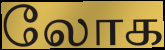
லோக